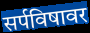
सर्पविषावर